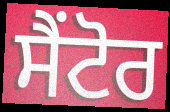
ਸੈਂਟੋਰ